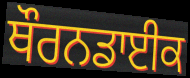
ਥੌਰਨਡਾਈਕ